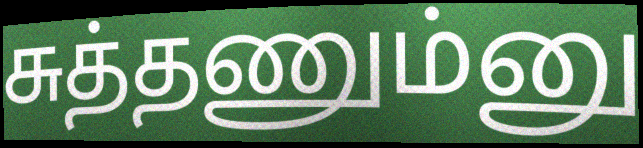
சுத்தணும்னு